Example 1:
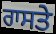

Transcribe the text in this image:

ਰਾਸਤੇ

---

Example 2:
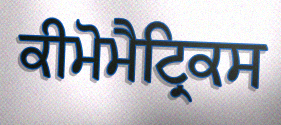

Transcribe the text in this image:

ਕੀਮੋਮੈਟ੍ਰਿਕਸ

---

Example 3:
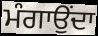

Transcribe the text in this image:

ਮੰਗਾਉਂਦਾ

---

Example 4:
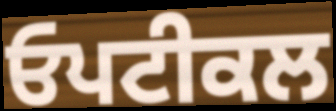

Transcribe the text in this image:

ਓਪਟੀਕਲ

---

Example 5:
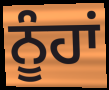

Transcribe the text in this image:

ਨੂੰਹਾਂ